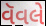
વૅવલે